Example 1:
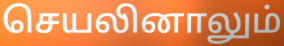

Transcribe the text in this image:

செயலினாலும்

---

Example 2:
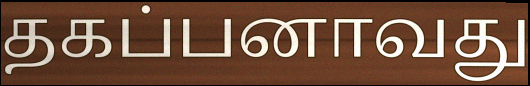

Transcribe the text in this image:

தகப்பனாவது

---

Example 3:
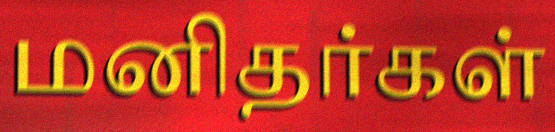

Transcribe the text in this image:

மனிதர்கள்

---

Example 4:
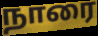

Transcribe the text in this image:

நாரை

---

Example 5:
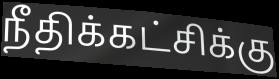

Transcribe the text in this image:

நீதிக்கட்சிக்கு